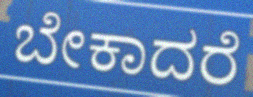
ಬೇಕಾದರೆ